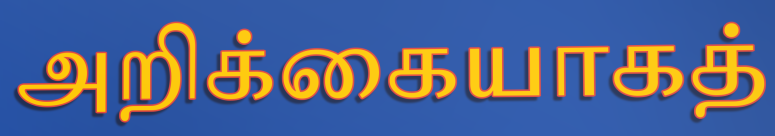
அறிக்கையாகத்